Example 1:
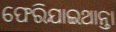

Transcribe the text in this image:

ଫେରିଯାଇଥାନ୍ତା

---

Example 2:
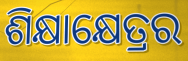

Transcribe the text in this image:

ଶିକ୍ଷାକ୍ଷେତ୍ରର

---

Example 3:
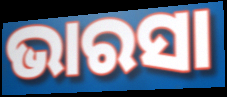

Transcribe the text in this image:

ଭାରସା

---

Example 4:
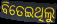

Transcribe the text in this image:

ବିତେଇଥିଲୁ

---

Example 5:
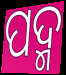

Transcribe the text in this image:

ପଦ୍ମ